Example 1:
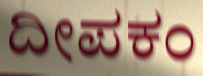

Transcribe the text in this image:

ದೀಪಕಂ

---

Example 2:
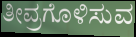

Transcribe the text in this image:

ತೀವ್ರಗೊಳಿಸುವ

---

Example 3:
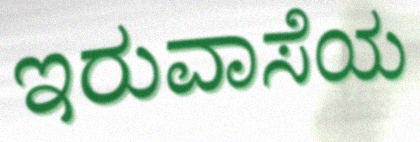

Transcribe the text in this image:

ಇರುವಾಸೆಯ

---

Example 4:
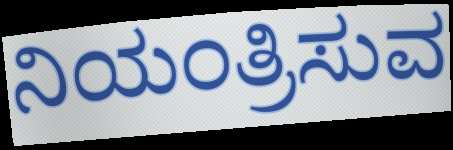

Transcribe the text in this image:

ನಿಯಂತ್ರಿಸುವ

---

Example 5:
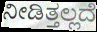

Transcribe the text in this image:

ನೀಡಿತ್ತಲ್ಲದೆ